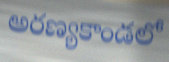
అరణ్యకాండలో